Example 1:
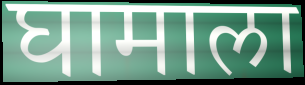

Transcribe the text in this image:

घामाला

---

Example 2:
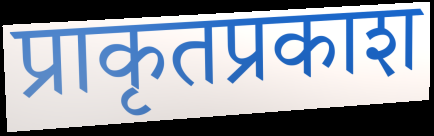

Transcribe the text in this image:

प्राकृतप्रकाश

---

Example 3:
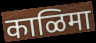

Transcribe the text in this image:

काळिमा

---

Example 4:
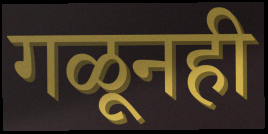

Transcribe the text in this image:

गळूनही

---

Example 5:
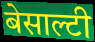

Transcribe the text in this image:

बेसाल्टी